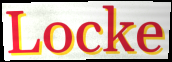
Locke